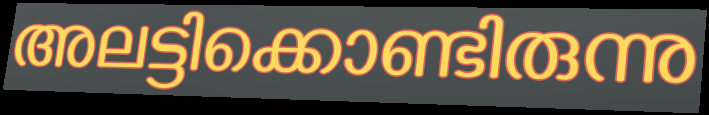
അലട്ടിക്കൊണ്ടിരുന്നു